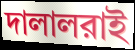
দালালরাই